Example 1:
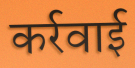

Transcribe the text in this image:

कर्रवाई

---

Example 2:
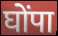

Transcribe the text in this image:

घोंपा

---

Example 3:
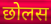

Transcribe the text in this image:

छोलस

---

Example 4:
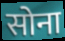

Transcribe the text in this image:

सोना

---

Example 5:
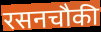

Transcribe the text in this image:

रसनचौकी